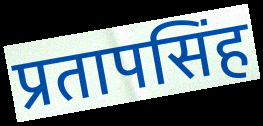
प्रतापसिंह